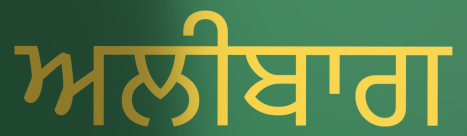
ਅਲੀਬਾਗ